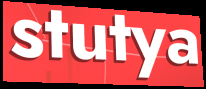
stutya